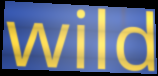
wild